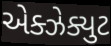
એક્ઝેક્યુટ